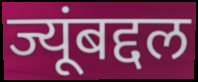
ज्यूंबद्दल